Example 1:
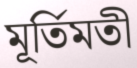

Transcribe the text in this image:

মূর্তিমতী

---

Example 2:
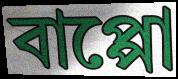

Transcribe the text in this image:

বাপ্পো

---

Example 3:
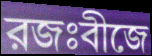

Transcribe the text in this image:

রজঃবীজে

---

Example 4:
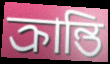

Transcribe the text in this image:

ক্রান্তি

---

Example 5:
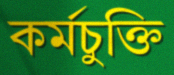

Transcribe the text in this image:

কর্মচুক্তি